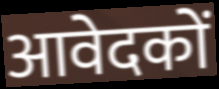
आवेदकों